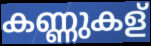
കണ്ണുകള്